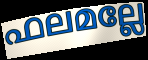
ഫലമല്ലേ